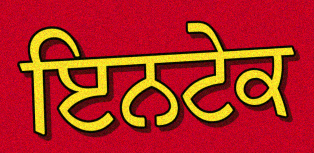
ਇਨਟੇਕ